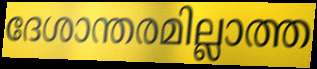
ദേശാന്തരമില്ലാത്ത